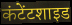
कंटेंटशाइड